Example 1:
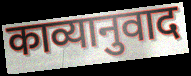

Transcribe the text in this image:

काव्यानुवाद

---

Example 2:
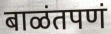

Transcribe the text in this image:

बाळंतपणं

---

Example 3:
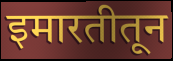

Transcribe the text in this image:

इमारतीतून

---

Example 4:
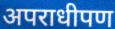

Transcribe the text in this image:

अपराधीपण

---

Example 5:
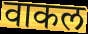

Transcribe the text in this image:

वाकल